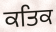
ਕਤਿਕ